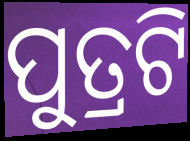
ପୁତ୍ରଟି